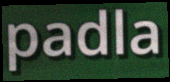
padla